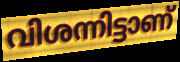
വിശന്നിട്ടാണ്